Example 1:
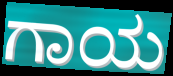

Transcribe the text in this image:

ಗಾಯ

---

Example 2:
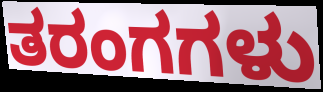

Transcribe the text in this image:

ತರಂಗಗಳು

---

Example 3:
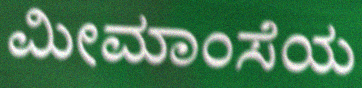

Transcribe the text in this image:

ಮೀಮಾಂಸೆಯ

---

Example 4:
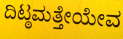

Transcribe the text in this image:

ದಿಟ್ಠಮತ್ತೇಯೇವ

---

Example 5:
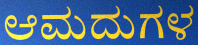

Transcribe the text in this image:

ಆಮದುಗಳ